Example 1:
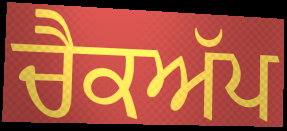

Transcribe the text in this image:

ਚੈਕਅੱਪ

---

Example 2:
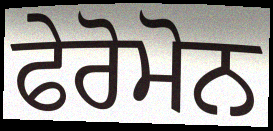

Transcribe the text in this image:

ਫੇਰੋਮੋਨ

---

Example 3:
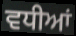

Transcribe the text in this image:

ਵਧੀਆਂ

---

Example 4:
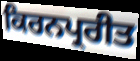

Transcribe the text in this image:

ਕਿਰਨਪ੍ਰਰੀਤ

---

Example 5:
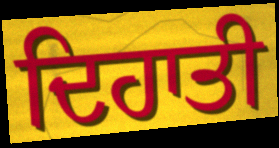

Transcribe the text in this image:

ਦਿਹਾਤੀ